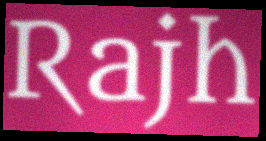
Rajh